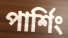
পার্শিং